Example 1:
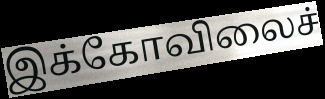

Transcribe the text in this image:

இக்கோவிலைச்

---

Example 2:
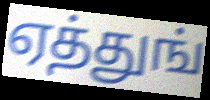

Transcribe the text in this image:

ஏத்துங்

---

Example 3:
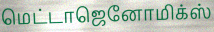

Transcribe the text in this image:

மெட்டாஜெனோமிக்ஸ்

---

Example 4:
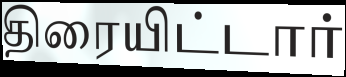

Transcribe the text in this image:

திரையிட்டார்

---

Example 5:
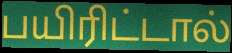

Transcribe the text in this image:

பயிரிட்டால்